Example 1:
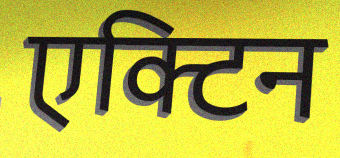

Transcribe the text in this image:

एक्टिन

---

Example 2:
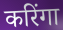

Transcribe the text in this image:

करिंगा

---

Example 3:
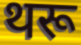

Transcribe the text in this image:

थरू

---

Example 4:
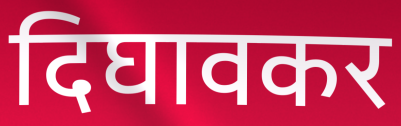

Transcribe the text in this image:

दिघावकर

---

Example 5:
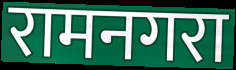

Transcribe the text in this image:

रामनगरा